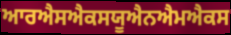
ਆਰਐਸਐਕਸਯੂਐਨਐਮਐਕਸ